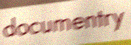
documentry